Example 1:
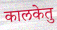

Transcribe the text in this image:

कालकेतु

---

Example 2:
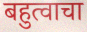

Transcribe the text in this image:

बहुत्वाचा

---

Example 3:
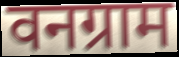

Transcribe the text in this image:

वनग्राम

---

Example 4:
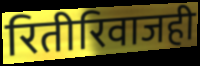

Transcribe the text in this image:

रितीरिवाजही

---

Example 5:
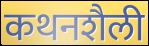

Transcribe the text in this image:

कथनशैली